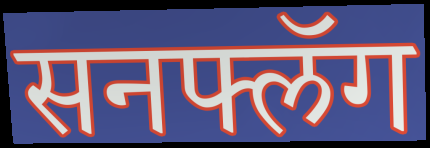
सनफ्लॅग